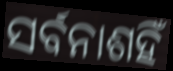
ସର୍ବନାଶହିଁ